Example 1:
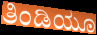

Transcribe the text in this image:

ತಿಂಡಿಯೂ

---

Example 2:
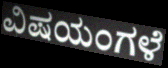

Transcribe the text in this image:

ವಿಷಯಂಗಳೆ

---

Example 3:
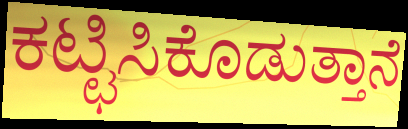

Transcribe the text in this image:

ಕಟ್ಟಿಸಿಕೊಡುತ್ತಾನೆ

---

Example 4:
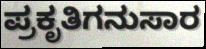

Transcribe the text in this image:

ಪ್ರಕೃತಿಗನುಸಾರ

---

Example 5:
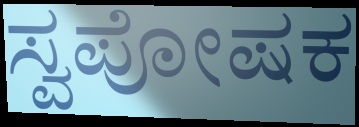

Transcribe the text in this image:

ಸ್ವಪೋಷಕ